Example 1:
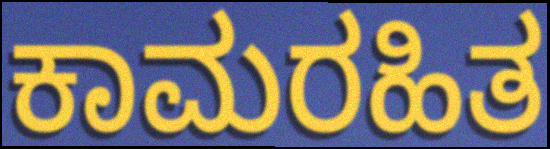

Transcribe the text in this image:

ಕಾಮರಹಿತ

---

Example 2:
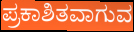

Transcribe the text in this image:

ಪ್ರಕಾಶಿತವಾಗುವ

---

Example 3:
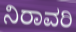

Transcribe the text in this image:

ನಿರಾವರಿ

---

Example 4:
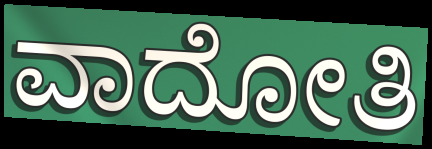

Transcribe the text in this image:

ವಾದೋತಿ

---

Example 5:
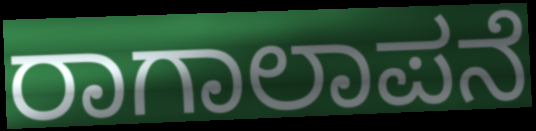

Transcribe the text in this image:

ರಾಗಾಲಾಪನೆ